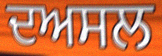
ਦਅਸਲ